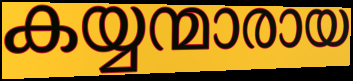
കയ്യന്മാരായ